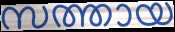
സത്തായ